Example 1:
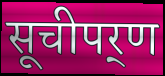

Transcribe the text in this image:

सूचीपर्ण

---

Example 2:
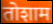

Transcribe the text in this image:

तोशाम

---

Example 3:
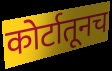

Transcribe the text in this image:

कोर्टातूनच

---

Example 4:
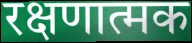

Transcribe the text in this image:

रक्षणात्मक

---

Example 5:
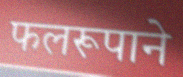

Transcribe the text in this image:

फलरूपाने